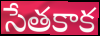
సేతకాక